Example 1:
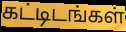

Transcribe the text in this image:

கட்டிடங்கள்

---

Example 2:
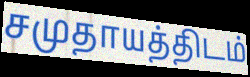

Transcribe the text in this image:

சமுதாயத்திடம்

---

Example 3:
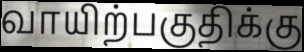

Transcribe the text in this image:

வாயிற்பகுதிக்கு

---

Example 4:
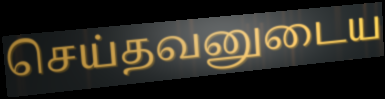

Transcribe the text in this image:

செய்தவனுடைய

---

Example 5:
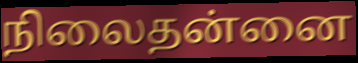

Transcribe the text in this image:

நிலைதன்னை